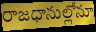
రాజధానుల్లోనూ